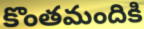
కొంతమందికి